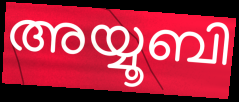
അയ്യൂബി